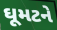
ઘૂમટને